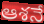
ఆశనే